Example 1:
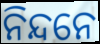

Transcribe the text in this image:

ନିନ୍ଦନେ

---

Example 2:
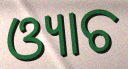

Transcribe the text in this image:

ଓ୍ୟାଚ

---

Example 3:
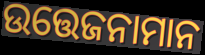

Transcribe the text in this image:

ଉତ୍ତେଜନାମାନ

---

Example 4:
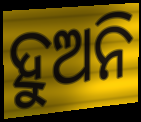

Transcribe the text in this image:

ହୁଅନି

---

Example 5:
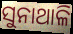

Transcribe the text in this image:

ସୁନାଥାଳି